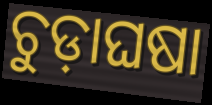
ଚୁଡ଼ାଘଷା